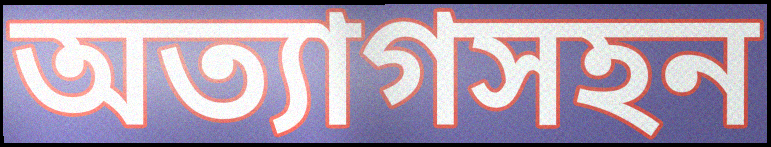
অত্যাগসহন